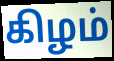
கிழம்